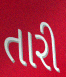
તારી